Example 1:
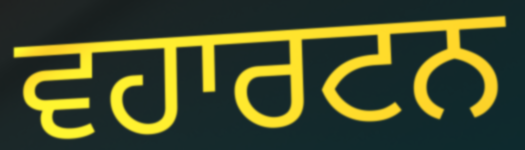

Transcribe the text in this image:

ਵਹਾਰਟਨ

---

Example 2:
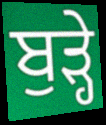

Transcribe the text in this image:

ਬੁੜ੍ਹੇ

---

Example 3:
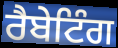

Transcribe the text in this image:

ਰੈਬੇਟਿੰਗ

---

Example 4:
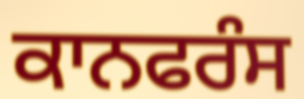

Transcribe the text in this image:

ਕਾਨਫਰੰਸ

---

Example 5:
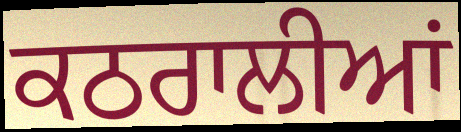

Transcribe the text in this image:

ਕਠਰਾਲੀਆਂ